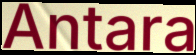
Antara